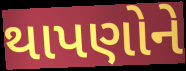
થાપણોને